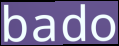
bado